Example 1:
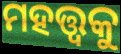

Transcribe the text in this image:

ମହତ୍ତ୍ଵକୁ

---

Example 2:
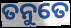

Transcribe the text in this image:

ତନୁତେ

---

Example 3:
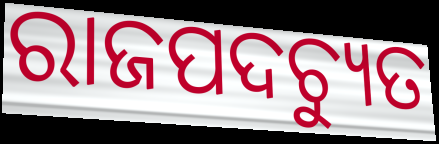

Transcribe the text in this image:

ରାଜପଦଚ୍ୟୁତ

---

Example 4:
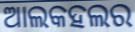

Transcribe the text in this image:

ଆଲକହଲର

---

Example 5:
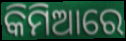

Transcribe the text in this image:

କିମିଆରେ